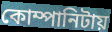
কোম্পানিটায়